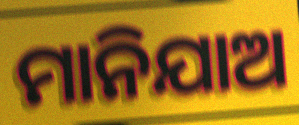
ମାନିଯାଅ